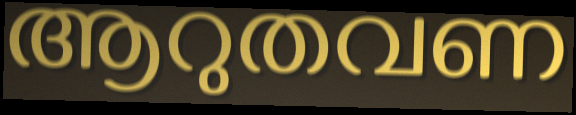
ആറുതവണ